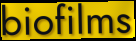
biofilms